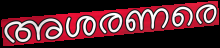
അശരണരെ